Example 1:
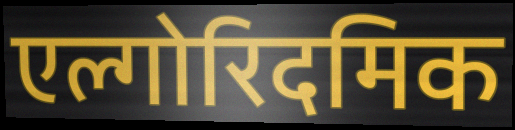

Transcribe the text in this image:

एल्गोरिदमिक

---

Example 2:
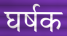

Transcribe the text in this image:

घर्षक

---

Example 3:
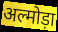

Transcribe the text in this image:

अल्मोड़ा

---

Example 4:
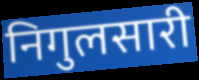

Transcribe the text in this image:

निगुलसारी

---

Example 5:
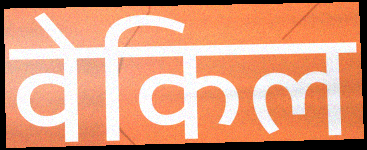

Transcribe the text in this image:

वेकिल